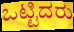
ಒಟ್ಟಿದರು